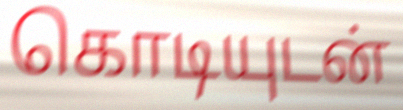
கொடியுடன்